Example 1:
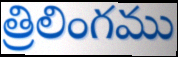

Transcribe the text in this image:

త్రిలింగము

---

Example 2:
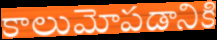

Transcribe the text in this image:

కాలుమోపడానికి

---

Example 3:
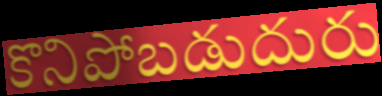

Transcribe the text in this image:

కొనిపోబడుదురు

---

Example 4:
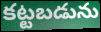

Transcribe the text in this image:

కట్టబడును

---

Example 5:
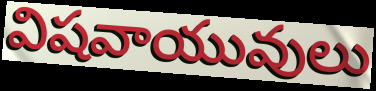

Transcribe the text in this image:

విషవాయువులు